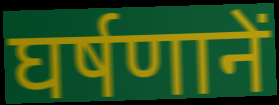
घर्षणानें